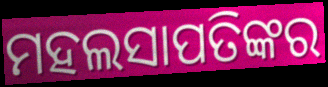
ମହଲସାପତିଙ୍କର